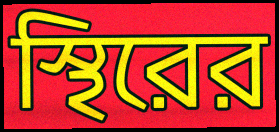
স্থিরের